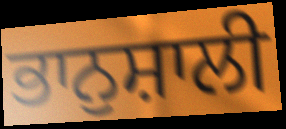
ਭਾਨੁਸ਼ਾਲੀ